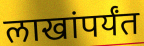
लाखांपर्यंत